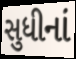
સુધીનાં